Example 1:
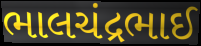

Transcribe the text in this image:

ભાલચંદ્રભાઈ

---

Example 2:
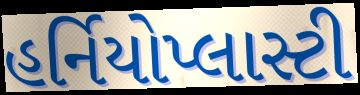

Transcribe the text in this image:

હર્નિયોપ્લાસ્ટી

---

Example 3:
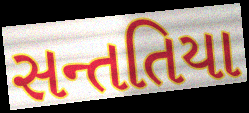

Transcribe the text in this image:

સન્તતિયા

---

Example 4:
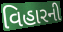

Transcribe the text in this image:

વિહારની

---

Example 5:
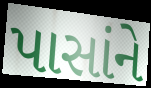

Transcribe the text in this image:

પાસાંને